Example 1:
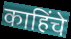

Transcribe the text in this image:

काहिंचे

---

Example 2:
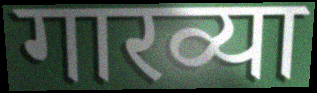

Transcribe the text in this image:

गारव्या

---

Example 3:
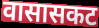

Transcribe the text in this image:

वासासकट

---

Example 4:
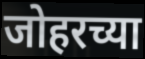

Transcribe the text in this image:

जोहरच्या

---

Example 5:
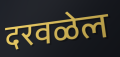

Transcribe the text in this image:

दरवळेल